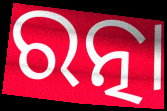
ରତ୍ନା